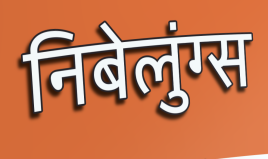
निबेलुंग्स